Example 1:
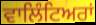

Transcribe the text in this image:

ਵਾਲਿੰਟਿਅਰਾਂ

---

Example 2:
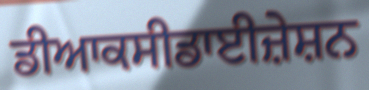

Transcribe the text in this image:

ਡੀਆਕਸੀਡਾਈਜ਼ੇਸ਼ਨ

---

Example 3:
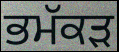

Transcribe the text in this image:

ਭਮੱਕੜ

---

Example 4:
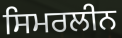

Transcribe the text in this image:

ਸਿਮਰਲੀਨ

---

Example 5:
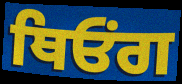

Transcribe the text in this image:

ਥਿਓਂਗ